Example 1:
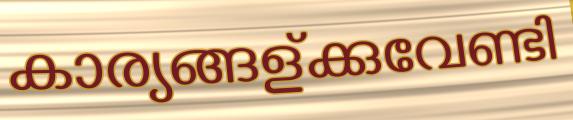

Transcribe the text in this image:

കാര്യങ്ങള്ക്കുവേണ്ടി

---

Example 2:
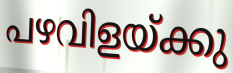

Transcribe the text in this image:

പഴവിളയ്ക്കു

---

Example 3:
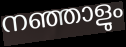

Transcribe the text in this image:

നഞ്ഞാളും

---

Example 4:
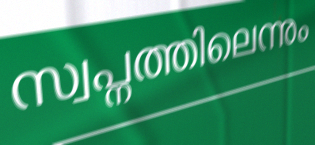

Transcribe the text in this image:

സ്വപ്നത്തിലെന്നും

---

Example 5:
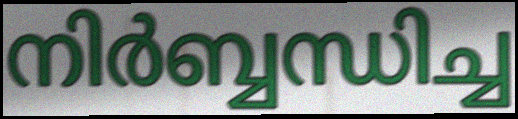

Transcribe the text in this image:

നിർബ്ബന്ധിച്ച